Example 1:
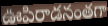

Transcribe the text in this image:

ఊపిరాడనంతగా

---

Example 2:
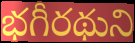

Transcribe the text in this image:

భగీరథుని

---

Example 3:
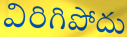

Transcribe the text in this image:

విరిగిపోదు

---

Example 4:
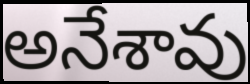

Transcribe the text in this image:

అనేశావు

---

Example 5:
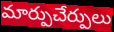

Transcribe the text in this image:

మార్పుచేర్పులు